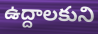
ఉద్దాలకుని